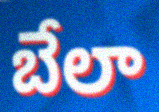
బేలా